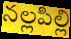
నల్లపిల్లి